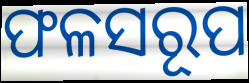
ଫଳସରୂପ